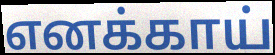
எனக்காய்